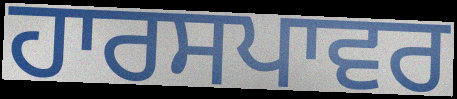
ਹਾਰਸਪਾਵਰ